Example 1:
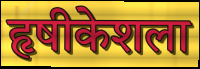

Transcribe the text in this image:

हृषीकेशला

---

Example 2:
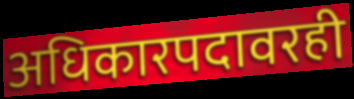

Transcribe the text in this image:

अधिकारपदावरही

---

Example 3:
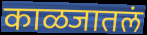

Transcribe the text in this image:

काळजातलं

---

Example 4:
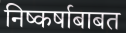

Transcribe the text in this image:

निष्कर्षाबाबत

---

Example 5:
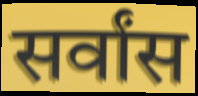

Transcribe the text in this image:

सर्वांस